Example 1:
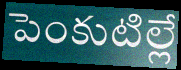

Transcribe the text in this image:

పెంకుటిల్లే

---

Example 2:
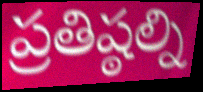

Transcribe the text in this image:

ప్రతిష్ఠల్ని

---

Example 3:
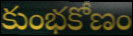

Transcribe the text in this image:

కుంభకోణం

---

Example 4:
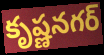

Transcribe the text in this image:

కృష్ణనగర్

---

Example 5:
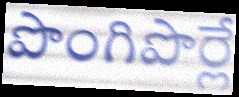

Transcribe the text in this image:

పొంగిపొర్లే